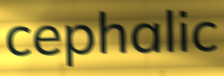
cephalic